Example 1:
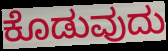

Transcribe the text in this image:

ಕೊಡುವುದು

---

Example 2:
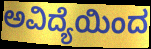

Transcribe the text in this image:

ಅವಿದ್ಯೆಯಿಂದ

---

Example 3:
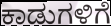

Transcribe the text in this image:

ಕಾಡುಗಳಿಗೆ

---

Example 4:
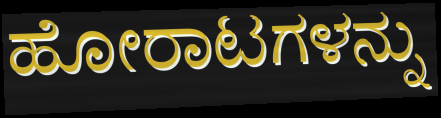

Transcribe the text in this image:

ಹೋರಾಟಗಳನ್ನು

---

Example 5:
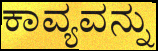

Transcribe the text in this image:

ಕಾವ್ಯವನ್ನು